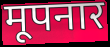
मूपनार